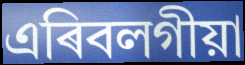
এৰিবলগীয়া